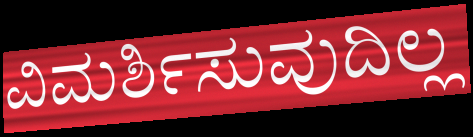
ವಿಮರ್ಶಿಸುವುದಿಲ್ಲ